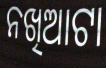
ନଖିଆଟା